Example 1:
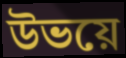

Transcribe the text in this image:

উভয়ে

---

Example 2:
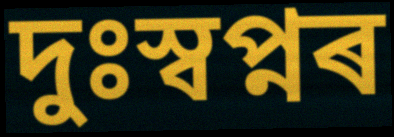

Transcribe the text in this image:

দুঃস্বপ্নৰ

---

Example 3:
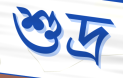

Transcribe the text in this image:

শুদ্ৰ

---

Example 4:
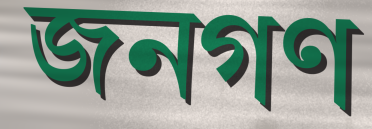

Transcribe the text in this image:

জনগণ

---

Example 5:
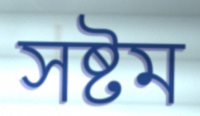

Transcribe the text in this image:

সষ্টম